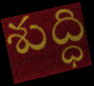
శుద్ధి